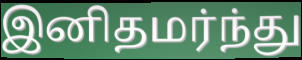
இனிதமர்ந்து